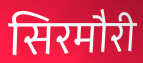
सिरमौरी